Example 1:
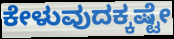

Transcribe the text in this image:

ಕೇಳುವುದಕ್ಕಷ್ಟೇ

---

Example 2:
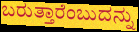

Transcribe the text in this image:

ಬರುತ್ತಾರೆಂಬುದನ್ನು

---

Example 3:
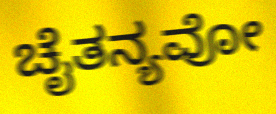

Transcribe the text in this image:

ಚೈತನ್ಯವೋ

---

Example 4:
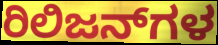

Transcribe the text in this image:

ರಿಲಿಜನ್‌ಗಳ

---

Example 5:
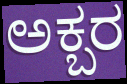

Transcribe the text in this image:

ಅಕ್ಬರ